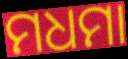
ମଧମା